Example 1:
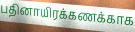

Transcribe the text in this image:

பதினாயிரக்கணக்காக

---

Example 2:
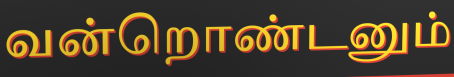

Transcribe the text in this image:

வன்றொண்டனும்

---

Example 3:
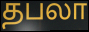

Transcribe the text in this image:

தபலா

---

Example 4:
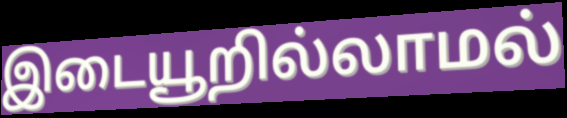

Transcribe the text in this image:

இடையூறில்லாமல்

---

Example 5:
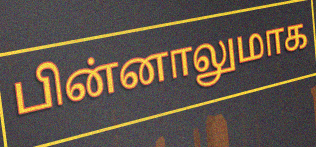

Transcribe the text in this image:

பின்னாலுமாக